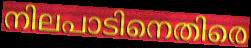
നിലപാടിനെതിരെ